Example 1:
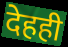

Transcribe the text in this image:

देहही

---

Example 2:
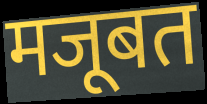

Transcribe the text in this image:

मजूबत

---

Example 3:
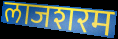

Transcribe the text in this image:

लाजशरम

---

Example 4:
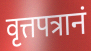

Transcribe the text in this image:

वृत्तपत्रानं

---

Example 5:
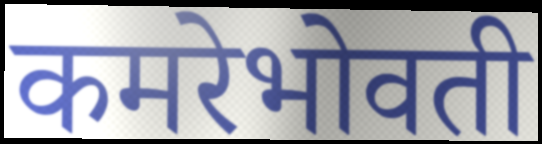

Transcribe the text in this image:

कमरेभोवती